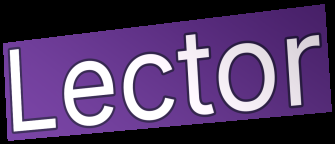
Lector